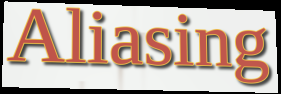
Aliasing